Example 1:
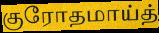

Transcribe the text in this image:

குரோதமாய்த்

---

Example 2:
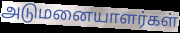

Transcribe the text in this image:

அடுமனையாளர்கள்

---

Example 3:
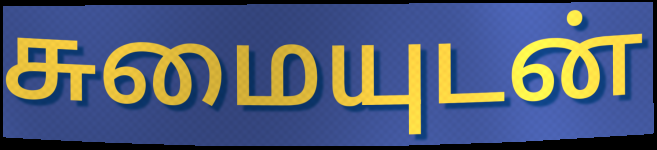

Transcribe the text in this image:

சுமையுடன்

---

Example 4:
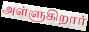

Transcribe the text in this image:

அள்ளுகிறார்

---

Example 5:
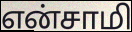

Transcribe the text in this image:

என்சாமி